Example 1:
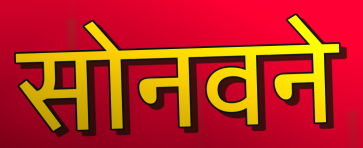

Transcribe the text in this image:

सोनवने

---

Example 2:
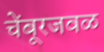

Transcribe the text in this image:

चेंबूरजवळ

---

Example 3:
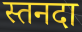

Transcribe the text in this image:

स्तनदा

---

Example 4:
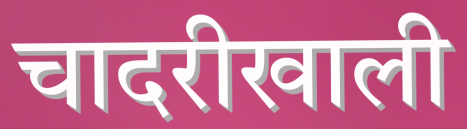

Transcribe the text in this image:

चादरीखाली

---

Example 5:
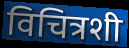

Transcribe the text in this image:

विचित्रशी